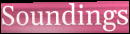
Soundings